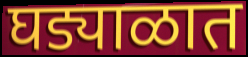
घड्याळात